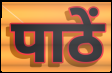
पाठें